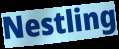
Nestling